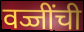
वज्जींची